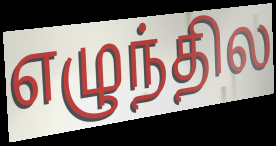
எழுந்தில